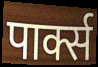
पार्क्स